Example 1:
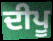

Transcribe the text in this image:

ਦੀਪੂ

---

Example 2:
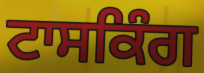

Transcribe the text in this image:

ਟਾਸਕਿੰਗ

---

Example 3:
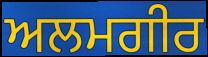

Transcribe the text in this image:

ਅਲਮਗੀਰ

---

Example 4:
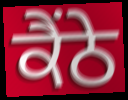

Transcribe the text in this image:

ਕੈਂਠੇ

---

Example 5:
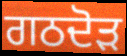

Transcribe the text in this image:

ਗਠਦੋੜ